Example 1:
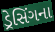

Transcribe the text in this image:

ડ્રેસિંગના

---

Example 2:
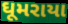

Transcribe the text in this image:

ઘૂમરાયા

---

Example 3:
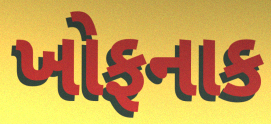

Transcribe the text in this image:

ખોફનાક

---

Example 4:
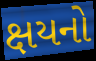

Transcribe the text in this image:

ક્ષયનો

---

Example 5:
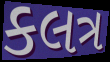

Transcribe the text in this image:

કલત્ર